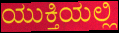
ಯುಕ್ತಿಯಲ್ಲಿ